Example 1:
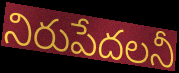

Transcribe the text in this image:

నిరుపేదలనీ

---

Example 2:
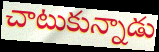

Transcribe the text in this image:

చాటుకున్నాడు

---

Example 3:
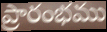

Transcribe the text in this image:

ప్రారంభము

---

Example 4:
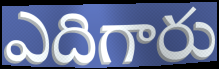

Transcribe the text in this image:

ఎదిగారు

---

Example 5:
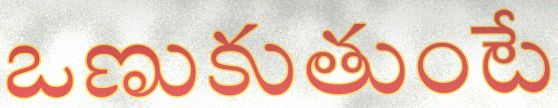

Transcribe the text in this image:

ఒణుకుతుంటే